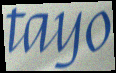
tayo